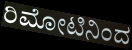
ರಿಮೋಟಿನಿಂದ